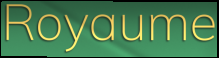
Royaume